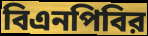
বিএনপিবির